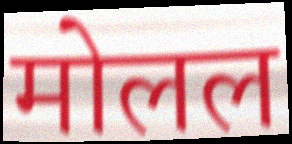
मोलल